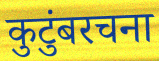
कुटुंबरचना